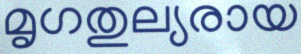
മൃഗതുല്യരായ